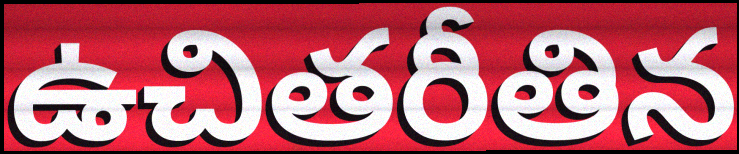
ఉచితరీతిన